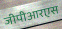
जीपीआरएस